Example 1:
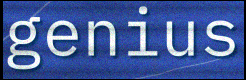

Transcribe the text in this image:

genius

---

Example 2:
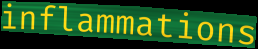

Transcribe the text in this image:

inflammations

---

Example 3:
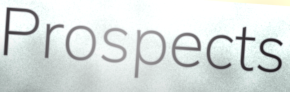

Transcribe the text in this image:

Prospects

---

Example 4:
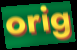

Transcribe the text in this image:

orig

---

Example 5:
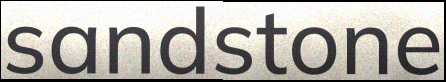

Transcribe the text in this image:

sandstone